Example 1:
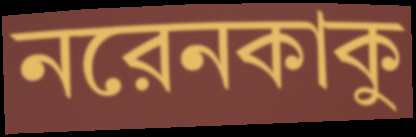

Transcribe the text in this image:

নরেনকাকু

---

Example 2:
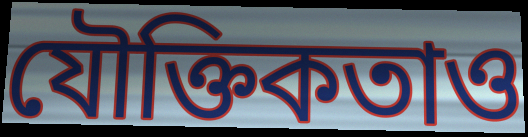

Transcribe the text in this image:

যৌক্তিকতাও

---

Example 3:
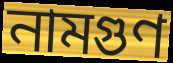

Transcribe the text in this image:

নামগুণ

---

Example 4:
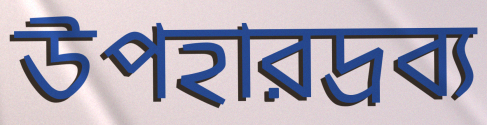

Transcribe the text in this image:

উপহারদ্রব্য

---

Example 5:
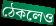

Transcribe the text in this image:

ঠেকলেও